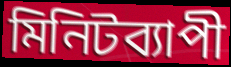
মিনিটব্যাপী